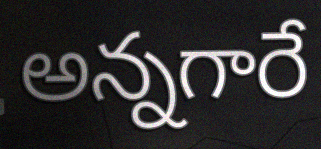
అన్నగారే